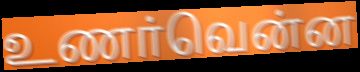
உணர்வென்ன